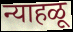
न्याहळू